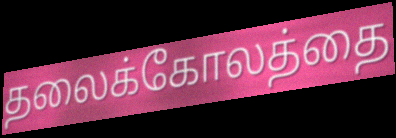
தலைக்கோலத்தை